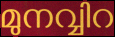
മുനവ്വിറ